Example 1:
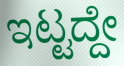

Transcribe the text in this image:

ಇಟ್ಟದ್ದೇ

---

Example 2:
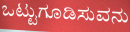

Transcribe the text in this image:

ಒಟ್ಟುಗೂಡಿಸುವನು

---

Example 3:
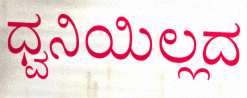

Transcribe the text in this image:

ಧ್ವನಿಯಿಲ್ಲದ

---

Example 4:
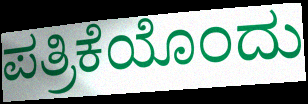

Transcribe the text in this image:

ಪತ್ರಿಕೆಯೊಂದು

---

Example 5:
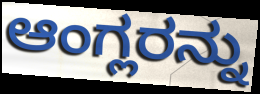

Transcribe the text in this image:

ಆಂಗ್ಲರನ್ನು